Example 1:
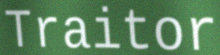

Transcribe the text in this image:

Traitor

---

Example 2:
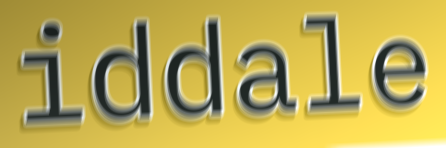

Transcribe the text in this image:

iddale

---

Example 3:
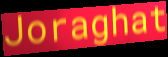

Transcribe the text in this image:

Joraghat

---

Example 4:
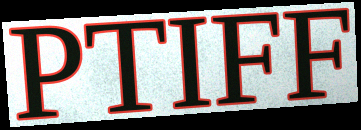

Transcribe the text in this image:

PTIFF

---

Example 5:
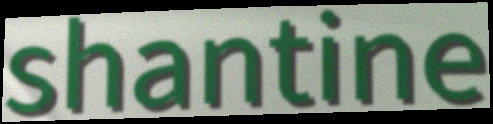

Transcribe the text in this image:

shantine